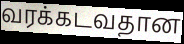
வரக்கடவதான